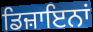
ਡਿਜ਼ਾਇਨਾਂ